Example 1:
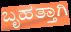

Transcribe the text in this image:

ಬೃಹತ್ತಾಗಿ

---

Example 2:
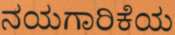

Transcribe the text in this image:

ನಯಗಾರಿಕೆಯ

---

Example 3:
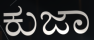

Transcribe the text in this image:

ಕುಜಾ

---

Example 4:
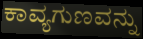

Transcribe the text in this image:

ಕಾವ್ಯಗುಣವನ್ನು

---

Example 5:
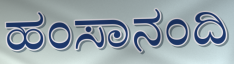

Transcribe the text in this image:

ಹಂಸಾನಂದಿ